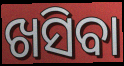
ଖସିବା